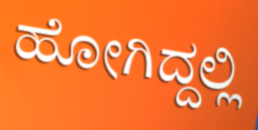
ಹೋಗಿದ್ದಲ್ಲಿ